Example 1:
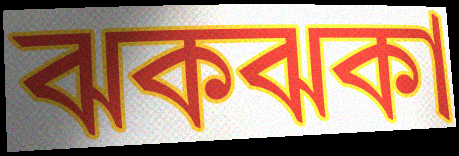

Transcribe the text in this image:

ঝকঝকা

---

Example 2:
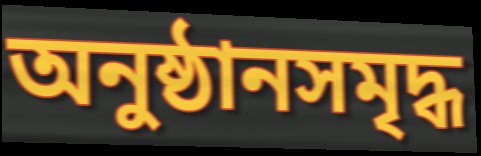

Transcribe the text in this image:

অনুষ্ঠানসমৃদ্ধ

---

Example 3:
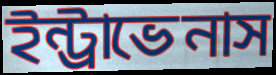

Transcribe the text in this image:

ইন্ট্রাভেনাস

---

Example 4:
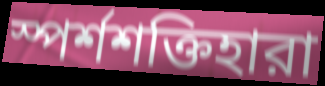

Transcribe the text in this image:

স্পর্শশক্তিহারা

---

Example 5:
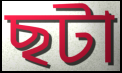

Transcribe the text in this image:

ছটা